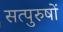
सत्पुरुषों